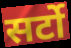
सर्टो